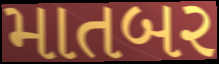
માતબર